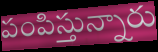
పంపిస్తున్నారు